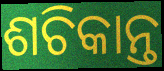
ଶଚିକାନ୍ତ